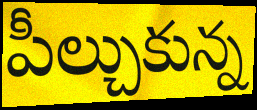
పీల్చుకున్న